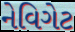
નેવિગેટ